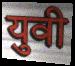
युवी